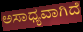
ಅಸಾಧ್ಯವಾಗಿದೆ